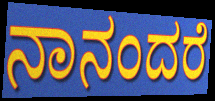
ನಾನಂದರೆ